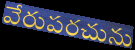
వేరుపరచును